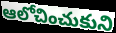
ఆలోచించుకుని